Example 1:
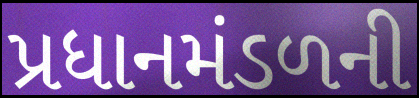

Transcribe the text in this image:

પ્રધાનમંડળની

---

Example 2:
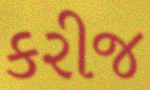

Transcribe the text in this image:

કરીજ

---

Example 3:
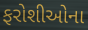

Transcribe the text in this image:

ફરોશીઓના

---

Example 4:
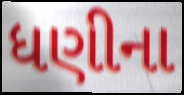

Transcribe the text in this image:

ધણીના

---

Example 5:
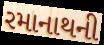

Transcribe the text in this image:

રમાનાથની